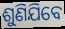
ଶୁଣିଯିବେ